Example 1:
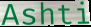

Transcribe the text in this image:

Ashti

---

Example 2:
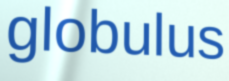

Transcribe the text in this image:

globulus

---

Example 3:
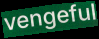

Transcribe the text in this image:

vengeful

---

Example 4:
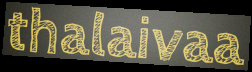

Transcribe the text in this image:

thalaivaa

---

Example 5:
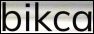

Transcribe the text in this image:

bikca